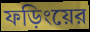
ফড়িংয়ের